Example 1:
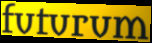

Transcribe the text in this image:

futurum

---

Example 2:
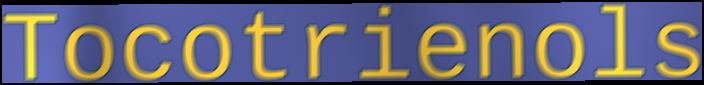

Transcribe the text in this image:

Tocotrienols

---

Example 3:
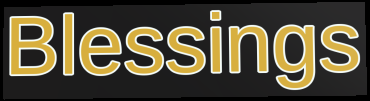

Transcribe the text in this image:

Blessings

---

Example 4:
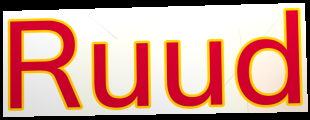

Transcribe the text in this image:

Ruud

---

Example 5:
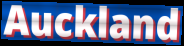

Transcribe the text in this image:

Auckland